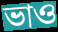
ভাও